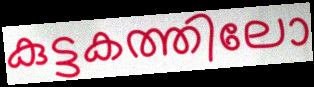
കുട്ടകത്തിലോ